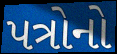
પત્રોનો